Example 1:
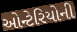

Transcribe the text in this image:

ઓન્ટેરિયોની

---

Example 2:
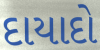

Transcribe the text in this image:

દાયાદો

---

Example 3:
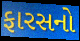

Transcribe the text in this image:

ફારસનો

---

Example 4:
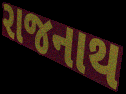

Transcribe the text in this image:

રાજનાથ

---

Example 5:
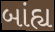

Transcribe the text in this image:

બાંહ્ય